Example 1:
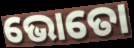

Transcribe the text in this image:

ଭୋତୋ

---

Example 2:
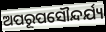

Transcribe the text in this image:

ଅପରୂପସୌନ୍ଦର୍ଯ୍ୟ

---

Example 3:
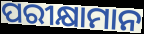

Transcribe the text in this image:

ପରୀକ୍ଷାମାନ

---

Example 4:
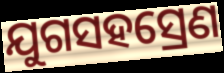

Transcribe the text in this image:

ଯୁଗସହସ୍ରେଣ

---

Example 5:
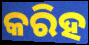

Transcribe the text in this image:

କରିହ